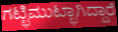
ಗಟ್ಟಿಮುಟ್ಟಾಗಿದ್ದಾರೆ